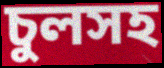
চুলসহ